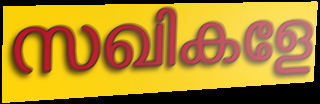
സഖികളേ